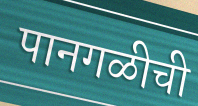
पानगळीची